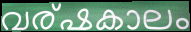
വര്ഷകാലം